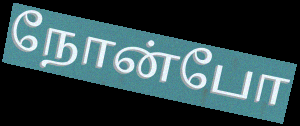
நோன்போ